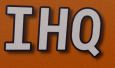
IHQ